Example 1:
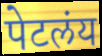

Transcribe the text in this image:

पेटलंय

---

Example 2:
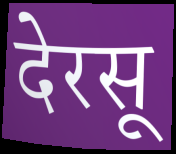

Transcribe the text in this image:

देरसू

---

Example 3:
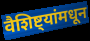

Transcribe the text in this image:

वैशिष्ट्यांमधून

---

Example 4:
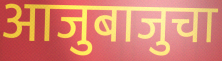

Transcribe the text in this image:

आजुबाजुचा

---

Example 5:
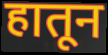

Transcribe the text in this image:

हातून